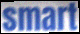
smart